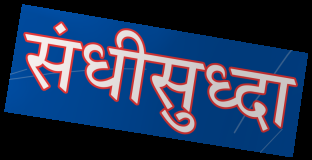
संधीसुध्दा